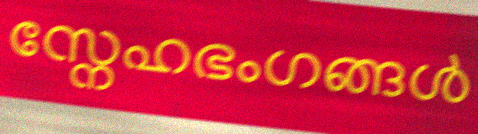
സ്നേഹഭംഗങ്ങൾ